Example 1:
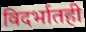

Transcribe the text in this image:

विदर्भातही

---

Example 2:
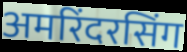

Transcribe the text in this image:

अमरिंदरसिंग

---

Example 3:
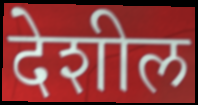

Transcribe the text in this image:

देशील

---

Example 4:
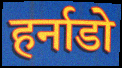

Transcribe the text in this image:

हर्नाडो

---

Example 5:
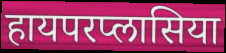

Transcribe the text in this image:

हायपरप्लासिया